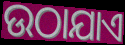
ଉଠାଯାଏ